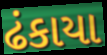
ઢંકાયા